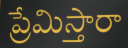
ప్రేమిస్తారా